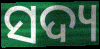
ସଦ୍ୟ